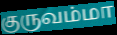
குருவம்மா